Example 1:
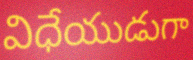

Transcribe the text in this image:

విధేయుడుగా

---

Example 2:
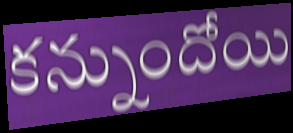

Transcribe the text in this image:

కన్నుందోయి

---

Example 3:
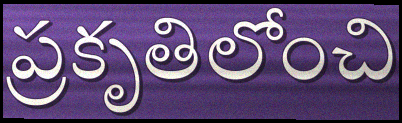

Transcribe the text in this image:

ప్రకృతిలోంచి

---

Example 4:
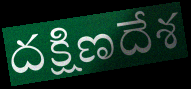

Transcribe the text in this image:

దక్షిణదేశ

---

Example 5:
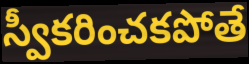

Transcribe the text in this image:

స్వీకరించకపోతే